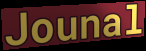
Jounal